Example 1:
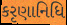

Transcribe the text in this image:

કરૃણાનિધિ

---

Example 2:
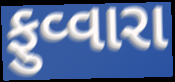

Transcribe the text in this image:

ફુવ્વારા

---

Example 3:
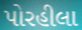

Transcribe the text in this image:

પોરહીલા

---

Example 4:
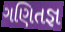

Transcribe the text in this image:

ગણિતજ્ઞ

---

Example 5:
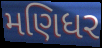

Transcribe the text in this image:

મણિધર